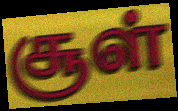
சூள்